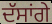
ਦੱਸਾਂਗੇ